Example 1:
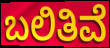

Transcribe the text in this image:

ಬಲಿತಿವೆ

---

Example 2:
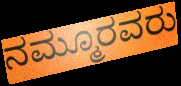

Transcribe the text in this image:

ನಮ್ಮೂರವರು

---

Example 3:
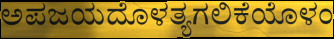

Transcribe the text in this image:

ಅಪಜಯದೊಳತ್ಯಗಲಿಕೆಯೊಳಂ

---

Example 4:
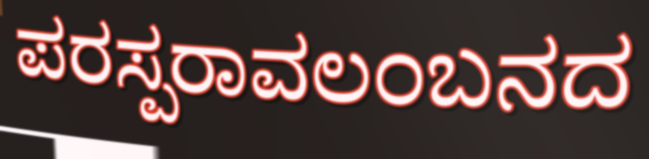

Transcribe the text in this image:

ಪರಸ್ಪರಾವಲಂಬನದ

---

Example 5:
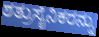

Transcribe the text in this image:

ಶತ್ರುಸೈನಿಕರನ್ನು